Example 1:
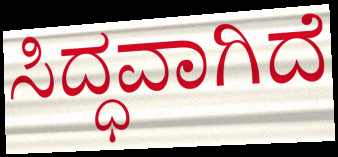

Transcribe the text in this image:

ಸಿದ್ಧವಾಗಿದೆ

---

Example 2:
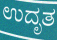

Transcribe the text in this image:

ಉದೃತ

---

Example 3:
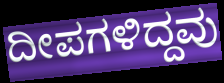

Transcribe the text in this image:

ದೀಪಗಳಿದ್ದವು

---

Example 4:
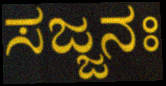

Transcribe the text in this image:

ಸಜ್ಜನಃ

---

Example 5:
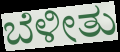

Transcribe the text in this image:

ಬೆಳೀತು